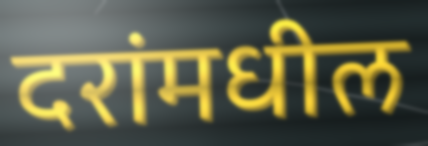
दरांमधील